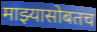
माझ्यासोबतच